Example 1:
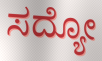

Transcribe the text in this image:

ಸದ್ಯೋ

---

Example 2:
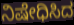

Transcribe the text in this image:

ನಿಷೇಧಿಸಿದ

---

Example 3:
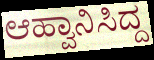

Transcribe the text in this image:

ಆಹ್ವಾನಿಸಿದ್ದ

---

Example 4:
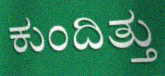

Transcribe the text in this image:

ಕುಂದಿತ್ತು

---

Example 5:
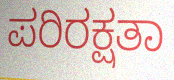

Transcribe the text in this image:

ಪರಿರಕ್ಷತಾ